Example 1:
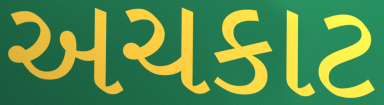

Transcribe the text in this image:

અચકાટ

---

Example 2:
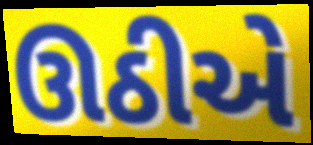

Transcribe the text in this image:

ઊઠીએ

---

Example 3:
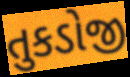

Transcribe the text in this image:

તુકડોજી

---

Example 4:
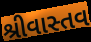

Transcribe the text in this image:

શ્રીવાસ્તવ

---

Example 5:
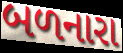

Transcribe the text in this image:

બળનારા